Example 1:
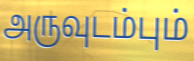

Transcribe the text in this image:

அருவுடம்பும்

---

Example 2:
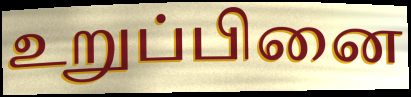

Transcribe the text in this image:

உறுப்பினை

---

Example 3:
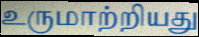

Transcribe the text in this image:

உருமாற்றியது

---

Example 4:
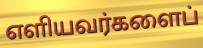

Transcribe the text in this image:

எளியவர்களைப்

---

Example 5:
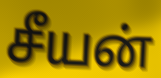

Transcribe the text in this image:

சீயன்